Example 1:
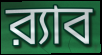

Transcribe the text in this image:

র‍্যাব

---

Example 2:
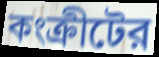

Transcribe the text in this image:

কংক্রীটের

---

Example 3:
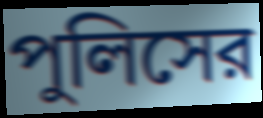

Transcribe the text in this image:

পুলিসের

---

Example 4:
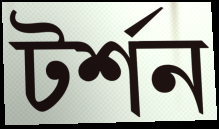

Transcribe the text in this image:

টর্শন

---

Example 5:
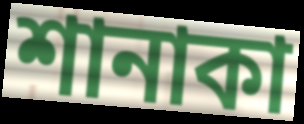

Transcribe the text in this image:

শানাকা